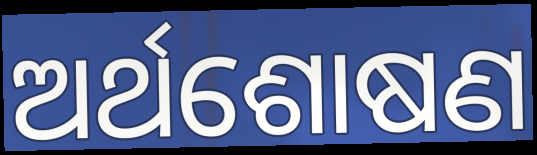
ଅର୍ଥଶୋଷଣ